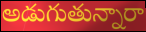
అడుగుతున్నారా